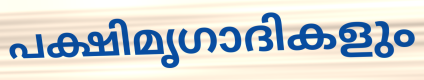
പക്ഷിമൃഗാദികളും